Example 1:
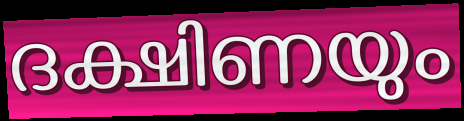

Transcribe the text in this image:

ദക്ഷിണയും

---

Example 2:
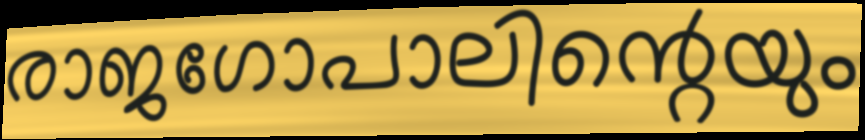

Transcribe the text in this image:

രാജഗോപാലിന്റെയും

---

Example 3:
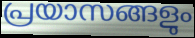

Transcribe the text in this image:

പ്രയാസങ്ങളും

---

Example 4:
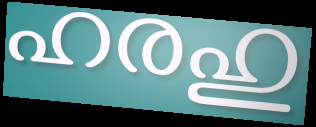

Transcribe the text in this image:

ഹരഹു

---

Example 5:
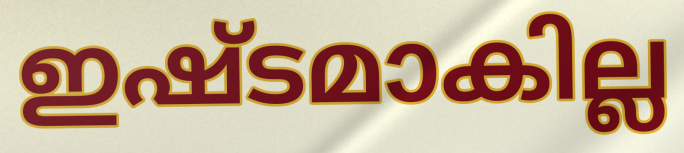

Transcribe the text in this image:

ഇഷ്ടമാകില്ല